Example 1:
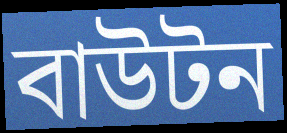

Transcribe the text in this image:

বাউটন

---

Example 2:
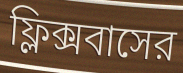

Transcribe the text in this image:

ফ্লিক্সবাসের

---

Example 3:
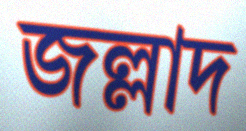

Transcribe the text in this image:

জল্লাদ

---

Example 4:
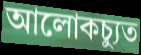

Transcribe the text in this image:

আলোকচ্যুত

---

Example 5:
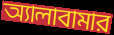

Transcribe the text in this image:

অ্যালাবামার